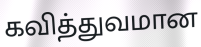
கவித்துவமான